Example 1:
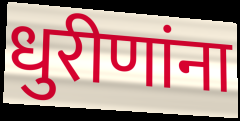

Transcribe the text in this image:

धुरीणांना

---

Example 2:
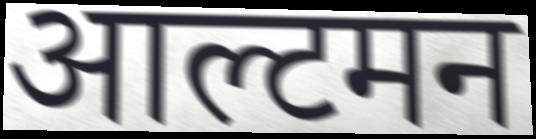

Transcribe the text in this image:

आल्टमन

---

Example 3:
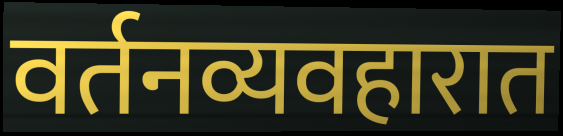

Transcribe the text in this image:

वर्तनव्यवहारात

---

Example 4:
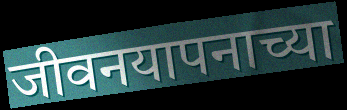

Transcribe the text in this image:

जीवनयापनाच्या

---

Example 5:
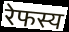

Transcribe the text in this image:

रेफस्य